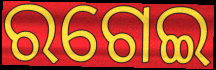
ରଗେଇ